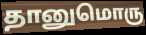
தானுமொரு